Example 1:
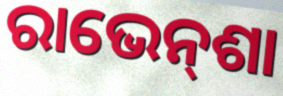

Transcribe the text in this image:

ରାଭେନ୍‌ଶା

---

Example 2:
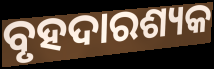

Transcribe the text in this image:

ବୃହଦାରଶ୍ୟକ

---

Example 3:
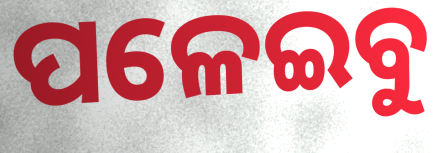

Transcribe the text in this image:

ପଳେଇବୁ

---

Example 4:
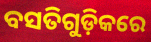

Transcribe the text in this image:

ବସତିଗୁଡ଼ିକରେ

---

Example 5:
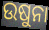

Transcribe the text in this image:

ଉଷୁନା